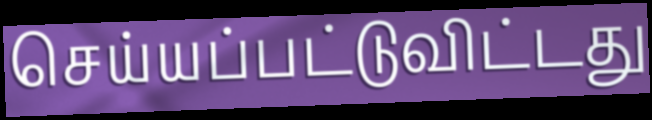
செய்யப்பட்டுவிட்டது